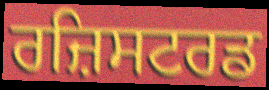
ਰਜ਼ਿਸਟਰਡ